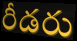
రీడరు